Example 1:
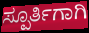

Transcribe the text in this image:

ಸ್ಪೂರ್ತಿಗಾಗಿ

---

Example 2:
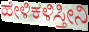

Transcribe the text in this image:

ಹೇಳಿಕಳಿಸ್ತೀನಿ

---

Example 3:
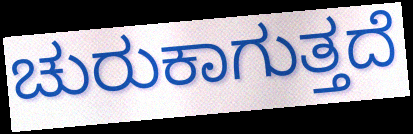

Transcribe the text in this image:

ಚುರುಕಾಗುತ್ತದೆ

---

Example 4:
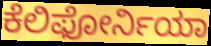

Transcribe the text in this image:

ಕೆಲಿಫೋರ್ನಿಯಾ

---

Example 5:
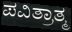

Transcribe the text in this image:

ಪವಿತ್ರಾತ್ಮ